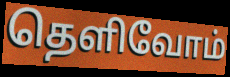
தெளிவோம்